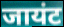
जायंट